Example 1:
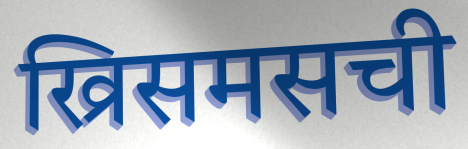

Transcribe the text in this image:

ख्रिसमसची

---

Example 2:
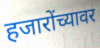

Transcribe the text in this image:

हजारोंच्यावर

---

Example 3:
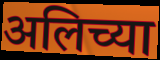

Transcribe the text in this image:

अलिच्या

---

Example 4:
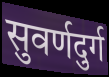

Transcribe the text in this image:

सुवर्णदुर्ग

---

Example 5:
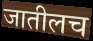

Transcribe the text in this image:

जातीलच